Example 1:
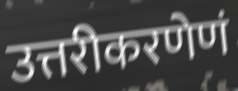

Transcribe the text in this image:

उत्तरीकरणेणं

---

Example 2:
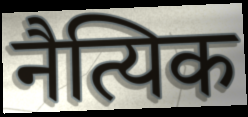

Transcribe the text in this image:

नैत्यिक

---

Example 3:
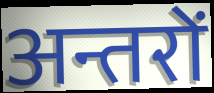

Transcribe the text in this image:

अन्तरों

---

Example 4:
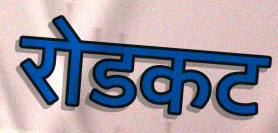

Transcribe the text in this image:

रोडकट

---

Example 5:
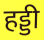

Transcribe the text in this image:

हड्डी